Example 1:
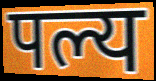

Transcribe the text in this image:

पल्य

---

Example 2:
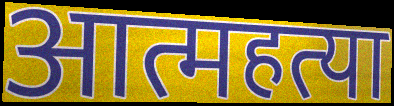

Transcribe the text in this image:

आत्‍महत्‍या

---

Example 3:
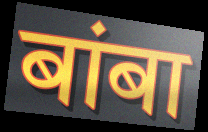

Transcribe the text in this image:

बांबा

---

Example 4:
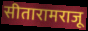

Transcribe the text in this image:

सीतारामराजू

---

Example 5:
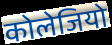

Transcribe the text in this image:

कोलेजियो